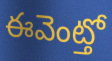
ఈవెంట్తో